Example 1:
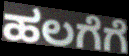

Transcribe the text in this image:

ಹಲಗೆಗೆ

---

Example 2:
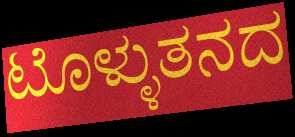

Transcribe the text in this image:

ಟೊಳ್ಳುತನದ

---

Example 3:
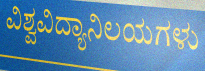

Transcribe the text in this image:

ವಿಶ್ವವಿದ್ಯಾನಿಲಯಗಳು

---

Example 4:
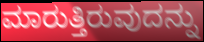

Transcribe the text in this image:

ಮಾರುತ್ತಿರುವುದನ್ನು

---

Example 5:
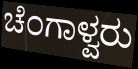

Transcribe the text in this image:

ಚೆಂಗಾಳ್ವರು